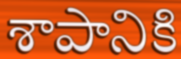
శాపానికి